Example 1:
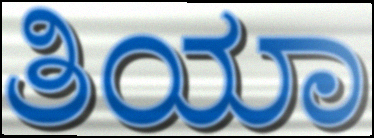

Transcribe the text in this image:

ತಿಯಾ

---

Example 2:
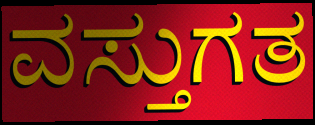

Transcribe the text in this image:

ವಸ್ತುಗತ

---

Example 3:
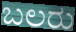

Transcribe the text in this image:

ಬಲರು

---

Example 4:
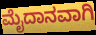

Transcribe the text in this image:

ಮೈದಾನವಾಗಿ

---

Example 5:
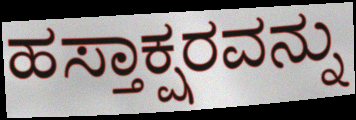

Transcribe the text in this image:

ಹಸ್ತಾಕ್ಷರವನ್ನು